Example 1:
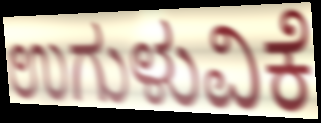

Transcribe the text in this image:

ಉಗುಳುವಿಕೆ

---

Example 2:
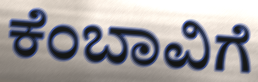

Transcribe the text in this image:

ಕೆಂಬಾವಿಗೆ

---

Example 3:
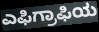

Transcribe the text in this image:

ಎಫಿಗ್ರಾಫಿಯ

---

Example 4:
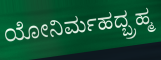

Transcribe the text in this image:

ಯೋನಿರ್ಮಹದ್ಬ್ರಹ್ಮ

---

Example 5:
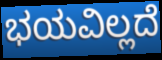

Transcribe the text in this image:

ಭಯವಿಲ್ಲದೆ